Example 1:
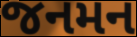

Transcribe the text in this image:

જનમન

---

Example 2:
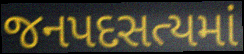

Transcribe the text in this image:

જનપદસત્યમાં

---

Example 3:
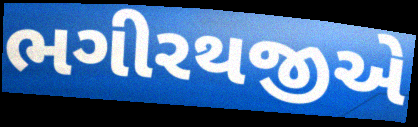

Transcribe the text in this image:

ભગીરથજીએ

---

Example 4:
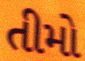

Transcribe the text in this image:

તીમો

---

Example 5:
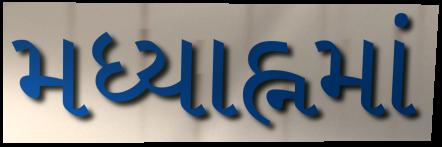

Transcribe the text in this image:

મધ્યાહ્નમાં